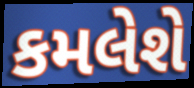
કમલેશે